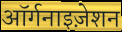
ऑर्गनाइज़ेशन